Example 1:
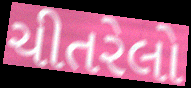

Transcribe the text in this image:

ચીતરેલો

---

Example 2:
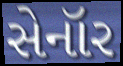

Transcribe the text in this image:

સેનૉર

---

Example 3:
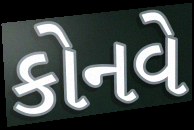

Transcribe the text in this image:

કોનવે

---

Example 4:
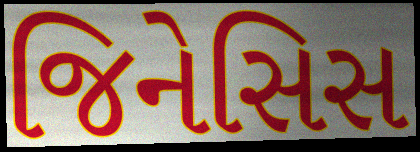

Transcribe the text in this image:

જિનેસિસ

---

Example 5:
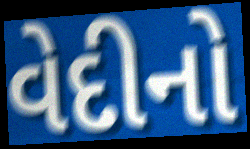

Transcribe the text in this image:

વેદીનો